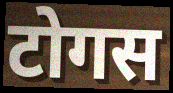
टोगस